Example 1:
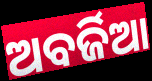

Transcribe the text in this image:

ଅବର୍ଜିଆ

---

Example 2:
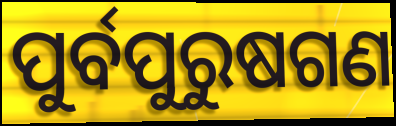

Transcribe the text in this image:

ପୁର୍ବପୁରୁଷଗଣ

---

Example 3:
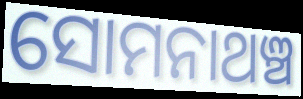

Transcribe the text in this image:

ସୋମନାଥଞ୍ଚ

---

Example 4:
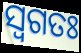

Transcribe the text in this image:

ସ୍ଵଗତଃ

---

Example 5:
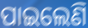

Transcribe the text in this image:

ପାଇଲେଣି